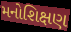
મનોશિક્ષણ